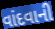
વાંદવાની